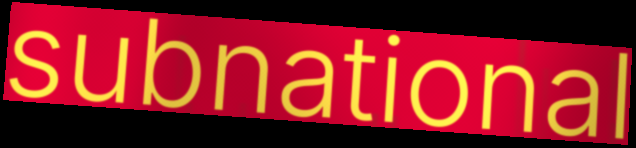
subnational